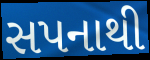
સપનાથી